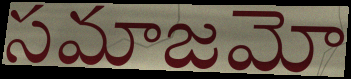
సమాజమో